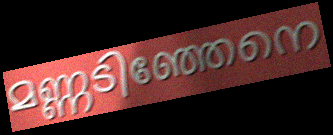
മണ്ണടിഞ്ഞേനെ